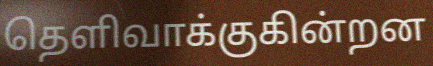
தெளிவாக்குகின்றன